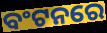
ବଂଟନରେ